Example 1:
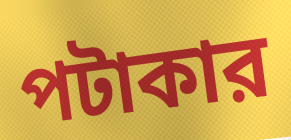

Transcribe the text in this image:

পটাকার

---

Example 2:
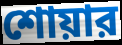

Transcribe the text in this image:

শোয়ার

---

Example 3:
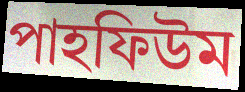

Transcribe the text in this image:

পাহফিউম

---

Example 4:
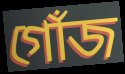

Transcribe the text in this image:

গোঁজ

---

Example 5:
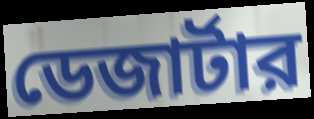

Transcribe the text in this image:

ডেজার্টার